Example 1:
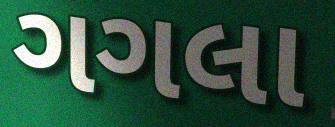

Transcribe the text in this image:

ગગલા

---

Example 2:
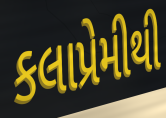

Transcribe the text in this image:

કલાપ્રેમીથી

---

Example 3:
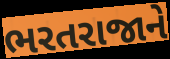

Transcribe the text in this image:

ભરતરાજાને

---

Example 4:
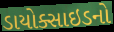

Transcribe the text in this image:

ડાયોક્સાઇડનો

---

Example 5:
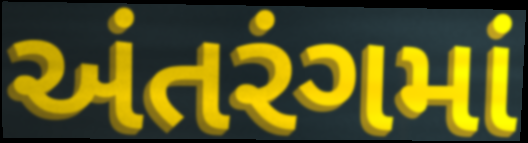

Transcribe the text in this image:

અંતરંગમાં